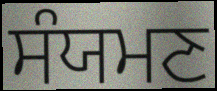
ਸੰਯਮਣ